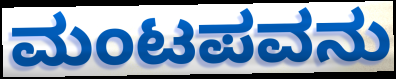
ಮಂಟಪವನು